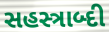
સહસ્ત્રાબ્દી